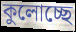
কুলোচ্ছে